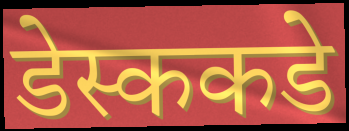
डेस्ककडे